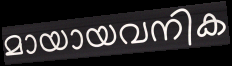
മായായവനിക